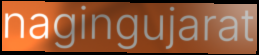
nagingujarat